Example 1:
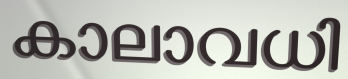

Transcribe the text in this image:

കാലാവധി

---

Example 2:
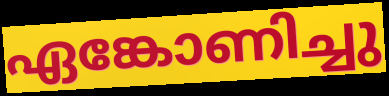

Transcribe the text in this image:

ഏങ്കോണിച്ചു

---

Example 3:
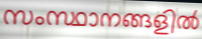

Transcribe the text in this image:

സംസ്ഥാനങ്ങളിൽ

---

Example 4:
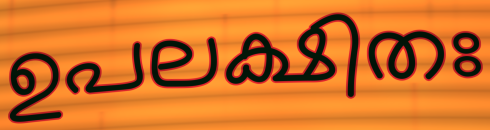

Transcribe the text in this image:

ഉപലക്ഷിതഃ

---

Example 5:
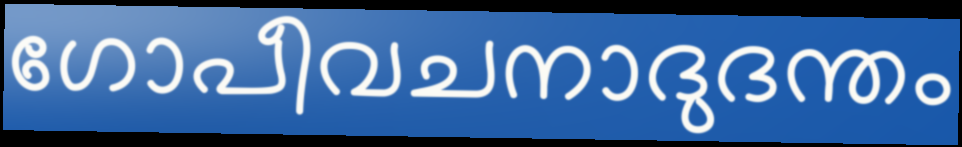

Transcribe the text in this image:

ഗോപീവചനാദുദന്തം